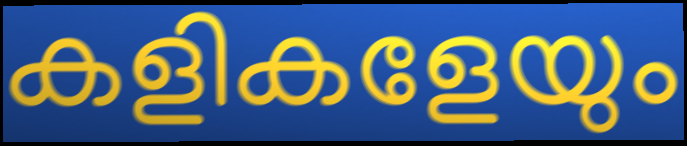
കളികളേയും